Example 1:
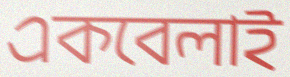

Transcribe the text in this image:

একবেলাই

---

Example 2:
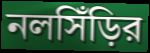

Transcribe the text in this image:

নলসিঁড়ির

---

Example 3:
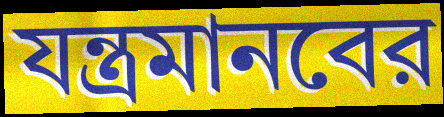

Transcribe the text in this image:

যন্ত্রমানবের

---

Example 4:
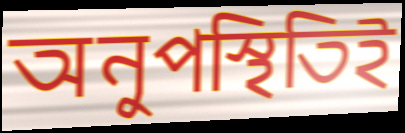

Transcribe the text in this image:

অনুপস্থিতিই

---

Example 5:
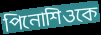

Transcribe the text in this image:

পিনোশিওকে